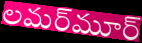
లమర్‌మూర్